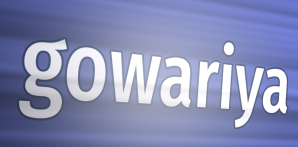
gowariya